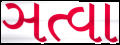
ઞત્વા